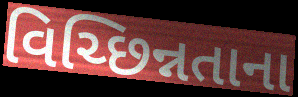
વિચ્છિન્નતાના